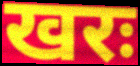
खरः